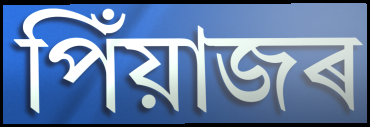
পিঁয়াজৰ